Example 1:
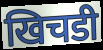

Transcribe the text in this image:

खिचडी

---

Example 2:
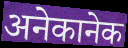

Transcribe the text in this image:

अनेकानेक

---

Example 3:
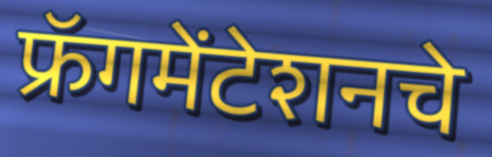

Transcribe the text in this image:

फ्रॅगमेंटेशनचे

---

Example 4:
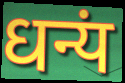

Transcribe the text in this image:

धन्यं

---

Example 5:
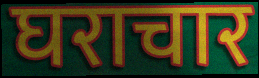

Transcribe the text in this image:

घराचार